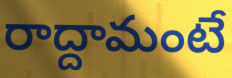
రాద్దామంటే